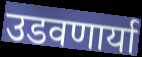
उडवणार्या